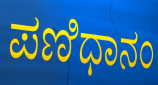
ಪಣಿಧಾನಂ